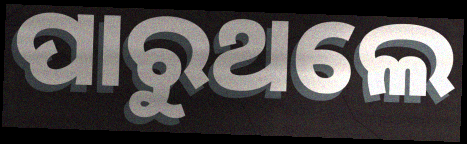
ପାରୁଥଲେ